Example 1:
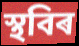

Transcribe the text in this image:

স্থবিৰ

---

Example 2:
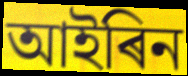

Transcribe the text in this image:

আইৰিন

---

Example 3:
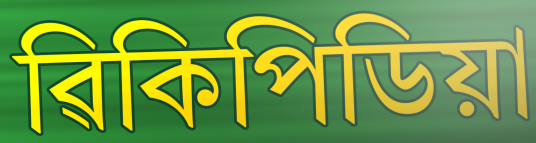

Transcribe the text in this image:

ৱিকিপিডিয়া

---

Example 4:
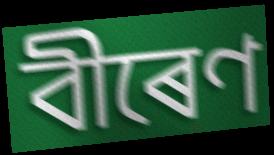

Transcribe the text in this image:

বীৰেণ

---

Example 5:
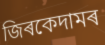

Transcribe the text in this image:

জিৰকেদামৰ